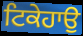
ਟਿਕੇਹਾਉ